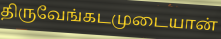
திருவேங்கடமுடையான்